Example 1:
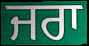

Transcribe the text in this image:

ਜਰਾ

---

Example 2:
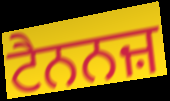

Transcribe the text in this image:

ਟੈਨਨਜ਼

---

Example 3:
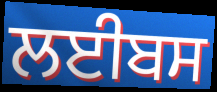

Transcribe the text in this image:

ਲਈਬਸ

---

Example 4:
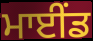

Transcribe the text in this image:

ਮਾਈਂਡ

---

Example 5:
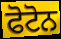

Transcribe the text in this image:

ਫੋਟੋਨ